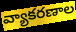
వ్యాకరణాల